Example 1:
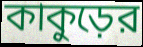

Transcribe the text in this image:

কাকুড়ের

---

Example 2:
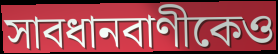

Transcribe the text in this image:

সাবধানবাণীকেও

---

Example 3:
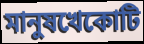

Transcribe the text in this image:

মানুষখেকোটি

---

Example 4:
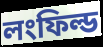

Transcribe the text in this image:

লংফিল্ড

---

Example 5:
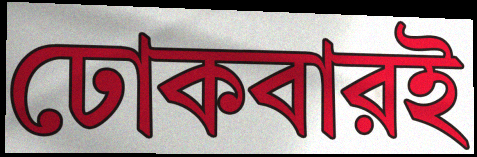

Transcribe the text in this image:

ঢোকবারই